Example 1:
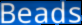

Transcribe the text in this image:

Beads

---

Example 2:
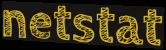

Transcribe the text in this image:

netstat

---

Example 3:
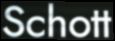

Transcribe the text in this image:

Schott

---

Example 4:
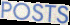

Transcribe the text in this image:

POSTS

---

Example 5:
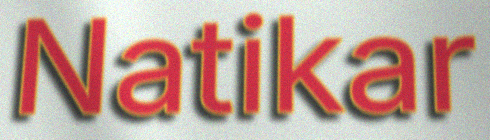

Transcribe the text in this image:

Natikar